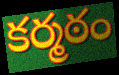
కర్మఠం